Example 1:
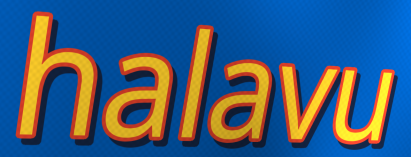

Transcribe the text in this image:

halavu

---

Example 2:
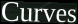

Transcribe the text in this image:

Curves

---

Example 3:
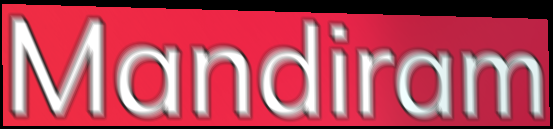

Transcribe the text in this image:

Mandiram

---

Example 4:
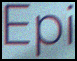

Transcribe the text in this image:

Epi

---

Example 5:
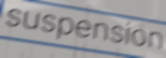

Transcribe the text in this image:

suspension